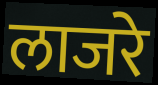
लाजरे